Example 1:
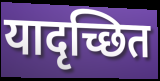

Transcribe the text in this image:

यादृच्छित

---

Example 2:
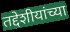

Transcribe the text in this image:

तद्देशीयांच्या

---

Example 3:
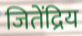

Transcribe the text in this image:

जितेंद्रिय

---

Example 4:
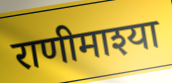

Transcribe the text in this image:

राणीमाश्या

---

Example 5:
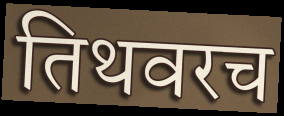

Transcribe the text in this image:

तिथवरच